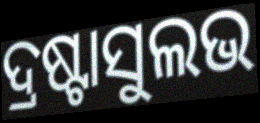
ଦ୍ରଷ୍ଟାସୁଲଭ